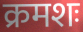
क्रमशः